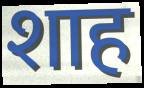
शाह